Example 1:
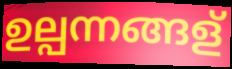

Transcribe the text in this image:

ഉല്പന്നങ്ങള്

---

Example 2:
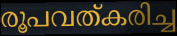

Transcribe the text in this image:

രൂപവത്കരിച്ച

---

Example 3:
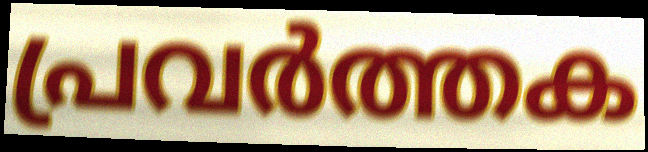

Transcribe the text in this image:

പ്രവർത്തക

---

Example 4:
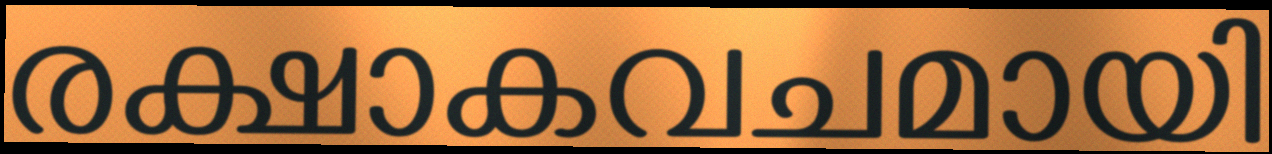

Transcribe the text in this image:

രക്ഷാകവചമായി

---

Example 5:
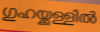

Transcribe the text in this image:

ഗുഹയ്ക്കുള്ളിൽ